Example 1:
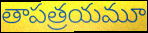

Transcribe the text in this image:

తాపత్రయమూ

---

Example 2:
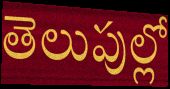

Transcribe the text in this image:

తెలుపుల్లో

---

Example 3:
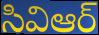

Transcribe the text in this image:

సివిఆర్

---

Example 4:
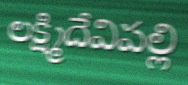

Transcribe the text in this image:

లక్ష్మిదేవిపల్లి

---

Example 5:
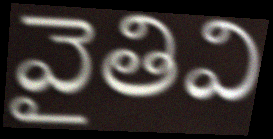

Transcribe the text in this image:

వైతివి